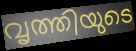
വൃത്തിയുടെ